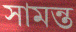
সামন্ত